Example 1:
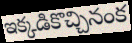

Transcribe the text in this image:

ఇక్కడికొచ్చినంక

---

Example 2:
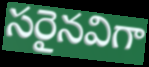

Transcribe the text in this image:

సరైనవిగా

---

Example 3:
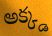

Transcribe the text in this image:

అక్క్డ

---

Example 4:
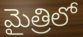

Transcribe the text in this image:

మైత్రిలో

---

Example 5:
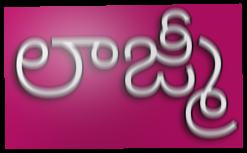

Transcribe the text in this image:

లాజ్మీ